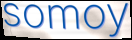
somoy